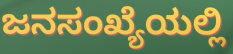
ಜನಸಂಖ್ಯೆಯಲ್ಲಿ